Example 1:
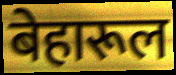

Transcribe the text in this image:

बेहारूल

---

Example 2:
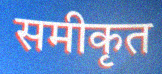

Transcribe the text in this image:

समीकृत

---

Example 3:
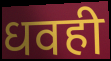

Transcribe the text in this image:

धवही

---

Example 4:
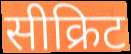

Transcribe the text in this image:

सीक्रिट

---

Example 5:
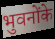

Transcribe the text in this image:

भुवनोंके